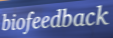
biofeedback